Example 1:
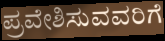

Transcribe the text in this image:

ಪ್ರವೇಶಿಸುವವರಿಗೆ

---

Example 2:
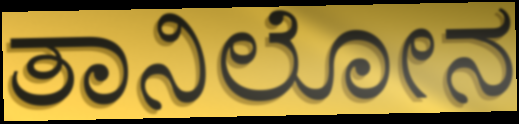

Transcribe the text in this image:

ತಾನಿಲೋನ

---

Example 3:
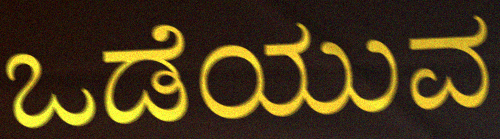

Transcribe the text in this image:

ಒಡೆಯುವ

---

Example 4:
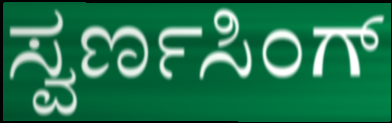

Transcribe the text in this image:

ಸ್ವರ್ಣಸಿಂಗ್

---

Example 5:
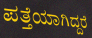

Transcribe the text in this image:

ಪತ್ತೆಯಾಗಿದ್ದರೆ